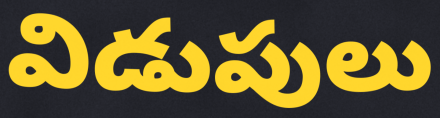
విడుపులు